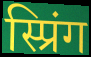
स्प्रिंग